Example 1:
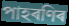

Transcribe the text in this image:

পাহৰণিৰ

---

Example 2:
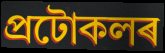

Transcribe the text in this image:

প্ৰটোকলৰ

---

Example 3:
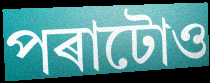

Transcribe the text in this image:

পৰাটোও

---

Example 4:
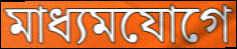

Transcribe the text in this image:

মাধ্যমযোগে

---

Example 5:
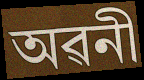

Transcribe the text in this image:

অৱনী